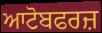
ਆਟੋਬਫਰਜ਼